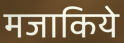
मजाकिये